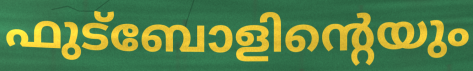
ഫുട്ബോളിന്റെയും